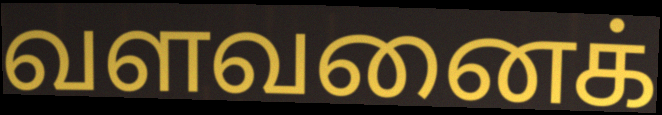
வளவனைக்